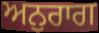
ਅਨੁਰਾਗ